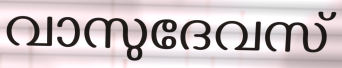
വാസുദേവസ്